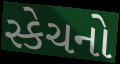
સ્કેચનો